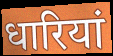
धारियां